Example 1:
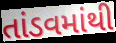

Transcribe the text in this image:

તાંડવમાંથી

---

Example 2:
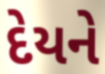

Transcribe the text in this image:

દેયને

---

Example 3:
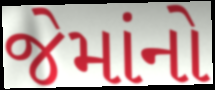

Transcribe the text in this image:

જેમાંનો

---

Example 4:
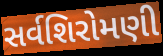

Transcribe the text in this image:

સર્વશિરોમણી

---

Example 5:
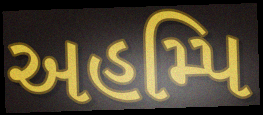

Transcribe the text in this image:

અહમ્પિ